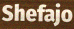
Shefajo